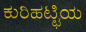
ಕುರಿಹಟ್ಟಿಯ